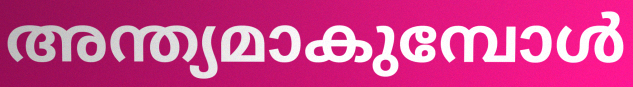
അന്ത്യമാകുമ്പോൾ